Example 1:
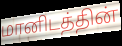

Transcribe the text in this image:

மானிடத்தின்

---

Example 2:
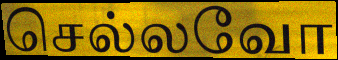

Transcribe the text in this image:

செல்லவோ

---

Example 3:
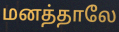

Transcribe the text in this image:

மனத்தாலே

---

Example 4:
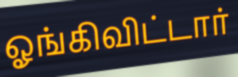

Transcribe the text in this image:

ஓங்கிவிட்டார்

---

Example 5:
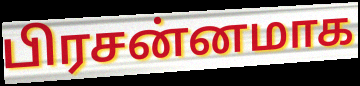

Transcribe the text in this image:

பிரசன்னமாக